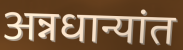
अन्नधान्यांत